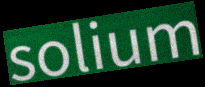
solium